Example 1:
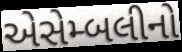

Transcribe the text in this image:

એસેમ્બલીનો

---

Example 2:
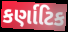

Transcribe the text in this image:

કર્ણાટિક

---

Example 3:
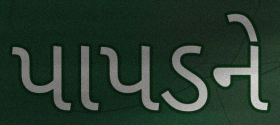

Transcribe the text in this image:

પાપડને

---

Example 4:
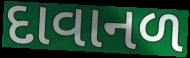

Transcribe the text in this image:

દાવાનળ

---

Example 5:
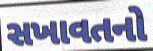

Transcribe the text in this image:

સખાવતનો